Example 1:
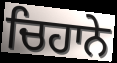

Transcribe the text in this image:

ਚਿਹਾਨੇ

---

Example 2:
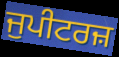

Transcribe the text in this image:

ਜੁਪੀਟਰਜ਼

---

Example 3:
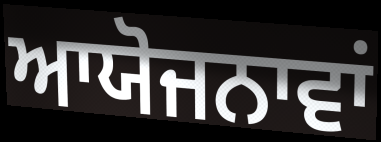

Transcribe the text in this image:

ਆਯੋਜਨਾਵਾਂ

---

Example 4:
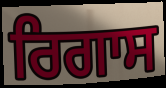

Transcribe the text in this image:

ਰਿਗਾਸ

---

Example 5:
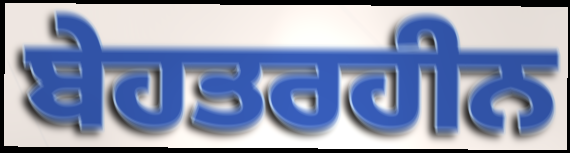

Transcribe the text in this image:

ਬੇਹਤਰਹੀਨ